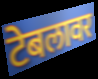
टेबलावर